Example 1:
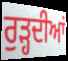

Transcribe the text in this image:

ਰੁੜ੍ਹਦੀਆਂ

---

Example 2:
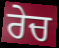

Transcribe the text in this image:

ਰੇਚ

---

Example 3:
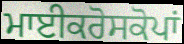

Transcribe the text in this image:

ਮਾਈਕਰੋਸਕੋਪਾਂ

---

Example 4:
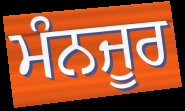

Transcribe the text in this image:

ਮੰਨਜੂਰ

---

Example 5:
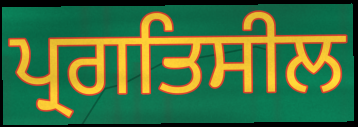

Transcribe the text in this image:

ਪ੍ਰਗਤਿਸੀਲ